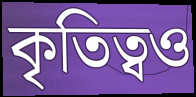
কৃতিত্বও